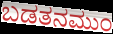
ಬಡತನಮುಂ